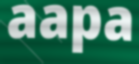
aapa